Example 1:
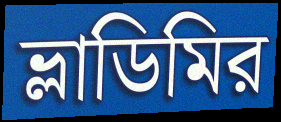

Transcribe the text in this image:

ভ্লাডিমির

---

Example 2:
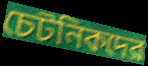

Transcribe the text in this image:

চেটনিকদের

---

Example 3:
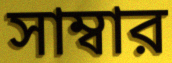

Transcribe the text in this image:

সাম্বার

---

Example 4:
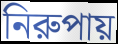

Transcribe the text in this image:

নিরুপায়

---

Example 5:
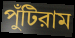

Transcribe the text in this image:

পুঁটিরাম